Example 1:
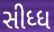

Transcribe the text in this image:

સીધ્ધ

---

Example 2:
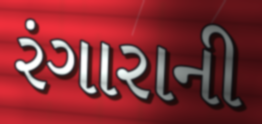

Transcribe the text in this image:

રંગારાની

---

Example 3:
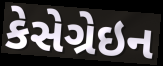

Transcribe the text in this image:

કેસેગ્રેઇન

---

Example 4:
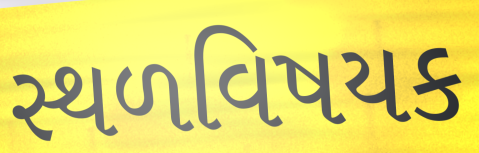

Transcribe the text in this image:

સ્થળવિષયક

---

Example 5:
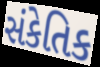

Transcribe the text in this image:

સંકેતિક